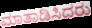
ಮಾತಾಡಿಸಿದರು